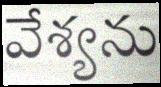
వేశ్యను